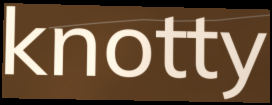
knotty